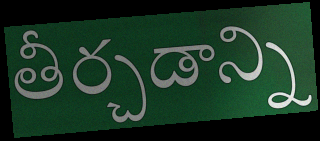
తీర్చడాన్ని